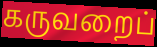
கருவறைப்